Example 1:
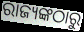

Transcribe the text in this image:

ରାଜ୍ୟଙ୍କଠାରୁ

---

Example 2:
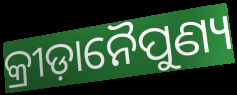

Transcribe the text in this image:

କ୍ରୀଡ଼ାନୈପୁଣ୍ୟ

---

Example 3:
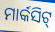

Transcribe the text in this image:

ମାର୍କସିଟ୍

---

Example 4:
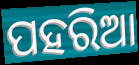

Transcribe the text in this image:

ପହରିଆ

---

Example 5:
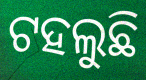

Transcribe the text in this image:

ଟହଲୁଛି